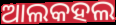
ଆଲକହଲ